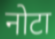
नोटा